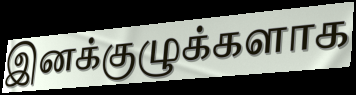
இனக்குழுக்களாக